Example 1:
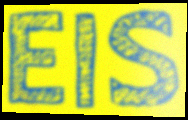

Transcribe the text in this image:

EIS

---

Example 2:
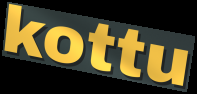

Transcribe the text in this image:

kottu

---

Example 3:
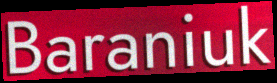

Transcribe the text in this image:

Baraniuk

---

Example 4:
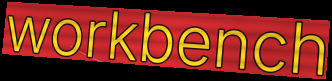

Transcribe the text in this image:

workbench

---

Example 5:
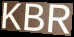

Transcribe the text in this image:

KBR